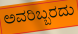
ಅವರಿಬ್ಬರದು